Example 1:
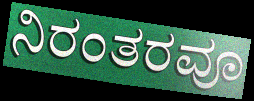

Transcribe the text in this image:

ನಿರಂತರವೂ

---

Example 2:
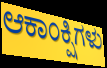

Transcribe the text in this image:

ಆಕಾಂಕ್ಷಿಗಳು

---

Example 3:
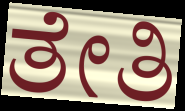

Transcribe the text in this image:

ತೇತಿ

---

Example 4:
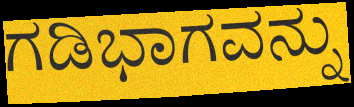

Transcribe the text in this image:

ಗಡಿಭಾಗವನ್ನು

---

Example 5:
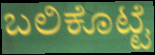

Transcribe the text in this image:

ಬಲಿಕೊಟ್ಟೆ